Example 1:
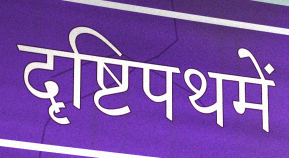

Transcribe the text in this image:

दृष्टिपथमें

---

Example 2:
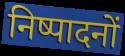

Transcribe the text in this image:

निष्पादनों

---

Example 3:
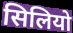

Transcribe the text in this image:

सिलियो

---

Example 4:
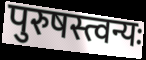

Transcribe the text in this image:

पुरुषस्त्वन्यः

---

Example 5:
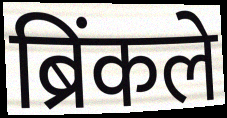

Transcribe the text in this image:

ब्रिंकले